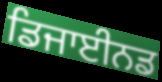
ਡਿਜਾਈਨਡ